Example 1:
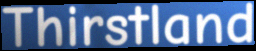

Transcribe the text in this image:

Thirstland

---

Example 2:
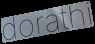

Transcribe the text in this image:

dorathi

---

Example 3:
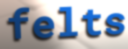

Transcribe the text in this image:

felts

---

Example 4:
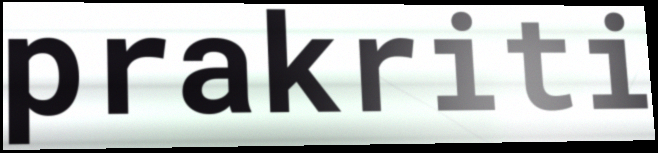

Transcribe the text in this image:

prakriti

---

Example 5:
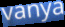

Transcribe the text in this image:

vanya